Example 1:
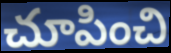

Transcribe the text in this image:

చూపించి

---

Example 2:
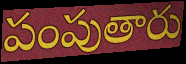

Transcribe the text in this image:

పంపుతారు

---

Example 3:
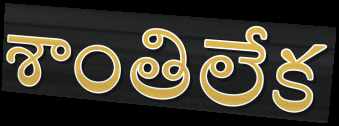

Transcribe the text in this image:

శాంతిలేక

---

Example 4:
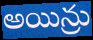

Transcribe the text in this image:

అయిన్రు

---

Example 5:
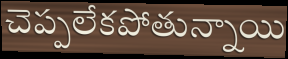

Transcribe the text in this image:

చెప్పలేకపోతున్నాయి